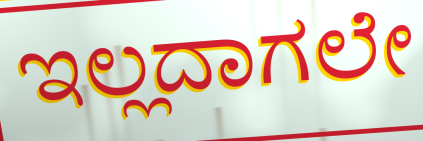
ಇಲ್ಲದಾಗಲೇ